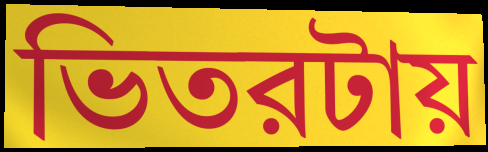
ভিতরটায়